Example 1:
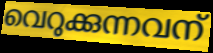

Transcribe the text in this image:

വെറുക്കുന്നവന്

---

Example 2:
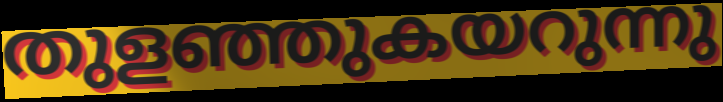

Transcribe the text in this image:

തുളഞ്ഞുകയറുന്നു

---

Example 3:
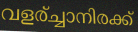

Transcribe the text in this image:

വളര്ച്ചാനിരക്ക്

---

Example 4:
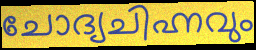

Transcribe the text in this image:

ചോദ്യചിഹ്നവും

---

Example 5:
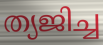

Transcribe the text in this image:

ത്യജിച്ച